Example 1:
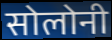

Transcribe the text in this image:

सोलोनी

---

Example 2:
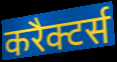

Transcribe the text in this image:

करैक्टर्स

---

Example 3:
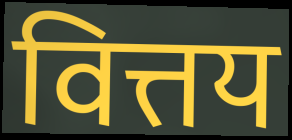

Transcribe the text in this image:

वित्तय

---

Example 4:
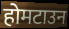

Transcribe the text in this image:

होमटाउन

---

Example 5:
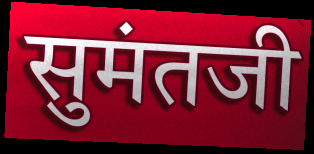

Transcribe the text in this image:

सुमंतजी